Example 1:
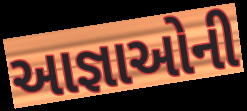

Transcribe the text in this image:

આજ્ઞાઓની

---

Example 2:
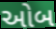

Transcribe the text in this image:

ઓબ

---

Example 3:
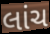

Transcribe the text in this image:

લાંચ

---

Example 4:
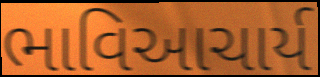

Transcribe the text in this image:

ભાવિઆચાર્ય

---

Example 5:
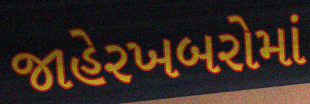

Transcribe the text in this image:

જાહેરખબરોમાં